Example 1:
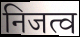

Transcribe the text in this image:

निजत्व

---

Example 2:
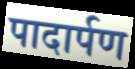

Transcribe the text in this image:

पादार्पण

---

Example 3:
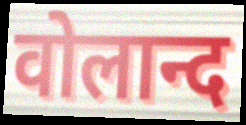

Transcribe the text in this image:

वोलान्द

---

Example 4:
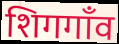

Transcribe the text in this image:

शिगगाँव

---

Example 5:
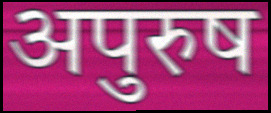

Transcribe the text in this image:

अपुरुष